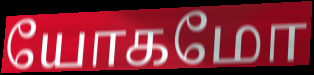
யோகமோ